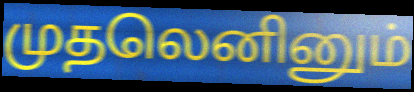
முதலெனினும்